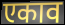
एकाव